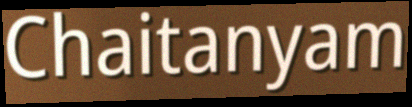
Chaitanyam